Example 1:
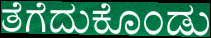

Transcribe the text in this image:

ತೆಗೆದುಕೊಂಡು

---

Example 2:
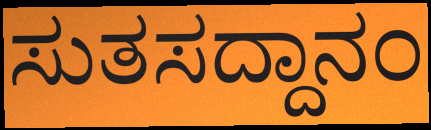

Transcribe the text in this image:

ಸುತಸದ್ದಾನಂ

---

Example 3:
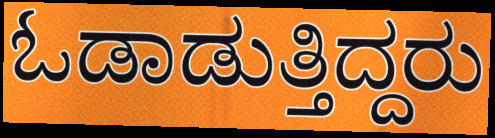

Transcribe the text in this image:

ಓಡಾಡುತ್ತಿದ್ದರು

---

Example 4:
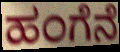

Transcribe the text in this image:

ಹಂಗೆನೆ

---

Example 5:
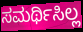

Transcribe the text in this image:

ಸಮರ್ಥಿಸಿಲ್ಲ